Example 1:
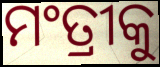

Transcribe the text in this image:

ମଂତ୍ରୀକୁ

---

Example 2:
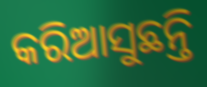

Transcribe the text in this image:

କରିଆସୁଛନ୍ତି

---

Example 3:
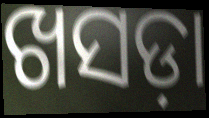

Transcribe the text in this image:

ଖସଡ଼ା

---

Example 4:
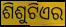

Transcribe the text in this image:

ଶିଶୁଟିଏର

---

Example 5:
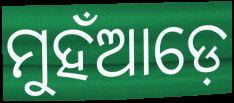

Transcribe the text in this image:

ମୁହଁଆଡ଼େ